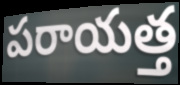
పరాయత్త